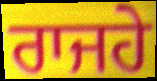
ਰਾਜਹੇ